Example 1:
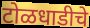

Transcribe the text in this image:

टोळधाडीचे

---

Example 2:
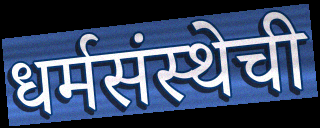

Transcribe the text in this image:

धर्मसंस्थेची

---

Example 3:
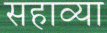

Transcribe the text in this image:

सहाव्या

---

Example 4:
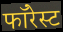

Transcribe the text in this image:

फॉरेस्ट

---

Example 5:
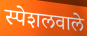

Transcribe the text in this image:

स्पेशलवाले